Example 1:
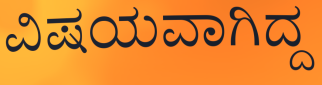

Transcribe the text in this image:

ವಿಷಯವಾಗಿದ್ದ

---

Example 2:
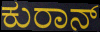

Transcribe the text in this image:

ಕುರಾನ್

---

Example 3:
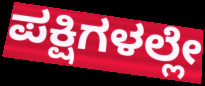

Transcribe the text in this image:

ಪಕ್ಷಿಗಳಲ್ಲೇ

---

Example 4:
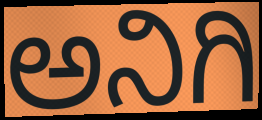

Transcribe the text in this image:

ಅನಿಗಿ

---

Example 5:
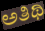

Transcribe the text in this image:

ಅತಿಥಿ